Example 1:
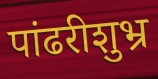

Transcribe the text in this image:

पांढरीशुभ्र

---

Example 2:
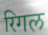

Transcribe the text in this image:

रिगल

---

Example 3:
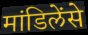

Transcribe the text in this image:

मांडिलेंसे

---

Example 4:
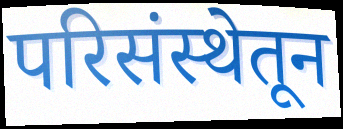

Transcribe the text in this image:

परिसंस्थेतून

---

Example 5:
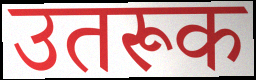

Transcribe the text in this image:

उतरूक